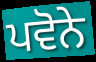
ਪਵੋਨੇ